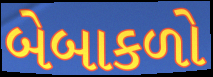
બેબાકળો